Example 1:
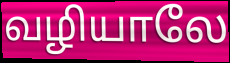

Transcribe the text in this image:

வழியாலே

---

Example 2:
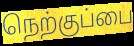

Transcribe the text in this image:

நெற்குப்பை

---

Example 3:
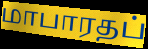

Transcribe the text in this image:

மாபாரதப்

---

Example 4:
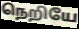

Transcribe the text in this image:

நெறியே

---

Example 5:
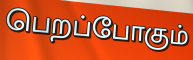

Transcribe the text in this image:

பெறப்போகும்